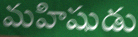
మహిషుడు